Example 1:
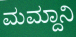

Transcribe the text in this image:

ಮಮ್ದಾನಿ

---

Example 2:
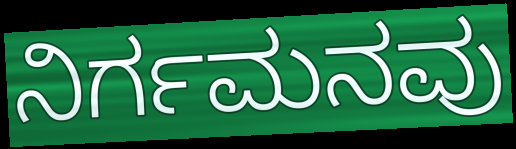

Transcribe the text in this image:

ನಿರ್ಗಮನವು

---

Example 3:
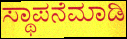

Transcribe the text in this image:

ಸ್ಥಾಪನೆಮಾಡಿ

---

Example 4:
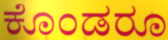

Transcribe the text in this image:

ಕೊಂಡರೂ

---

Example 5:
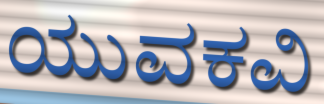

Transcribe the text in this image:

ಯುವಕವಿ